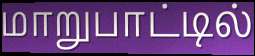
மாறுபாட்டில்